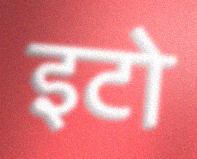
इटो